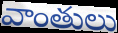
వాంతులు